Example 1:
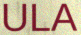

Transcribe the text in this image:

ULA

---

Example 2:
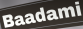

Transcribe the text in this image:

Baadami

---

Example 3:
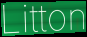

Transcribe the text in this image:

Litton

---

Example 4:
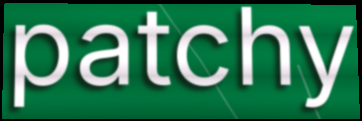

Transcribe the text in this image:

patchy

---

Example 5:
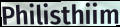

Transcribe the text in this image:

Philisthiim